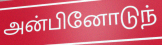
அன்பினோடுந்